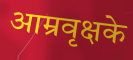
आम्रवृक्षके